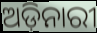
ଅଡ଼ିନାରୀ